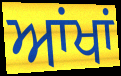
ਆਂਖਾਂ